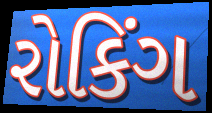
રોકિંગ